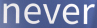
never